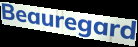
Beauregard